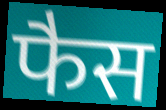
फैस